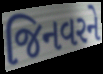
જિનવરને